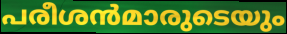
പരീശൻമാരുടെയും